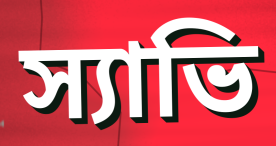
স্যাভি